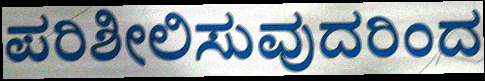
ಪರಿಶೀಲಿಸುವುದರಿಂದ